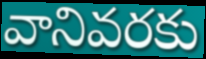
వానివరకు